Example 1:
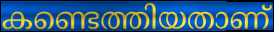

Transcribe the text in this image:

കണ്ടെത്തിയതാണ്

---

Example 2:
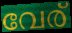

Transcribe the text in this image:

വേര്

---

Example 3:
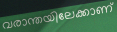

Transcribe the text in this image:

വരാന്തയിലേക്കാണ്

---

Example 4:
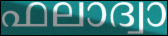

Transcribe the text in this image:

ഫലാദ്വാ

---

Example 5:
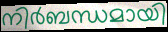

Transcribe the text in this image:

നിർബന്ധമായി